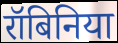
रॉबिनिया